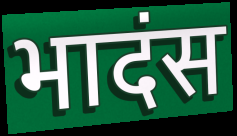
भादंस